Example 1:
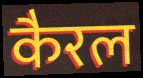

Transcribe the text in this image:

कैरल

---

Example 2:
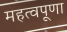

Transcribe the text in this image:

महत्वपूणा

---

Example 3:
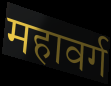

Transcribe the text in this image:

महावर्ग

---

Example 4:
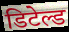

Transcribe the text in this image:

डिटेल्ड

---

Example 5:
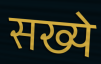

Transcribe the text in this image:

सख्ये